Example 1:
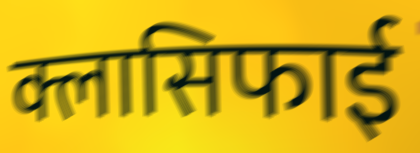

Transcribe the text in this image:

क्लासिफाई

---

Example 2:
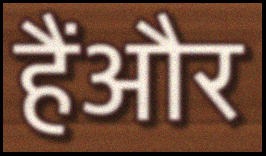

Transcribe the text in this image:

हैंऔर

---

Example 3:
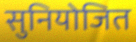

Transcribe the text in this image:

सुनियोजित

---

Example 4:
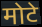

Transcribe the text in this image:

मोटे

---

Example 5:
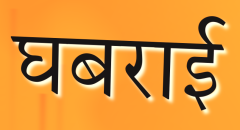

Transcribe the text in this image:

घबराई